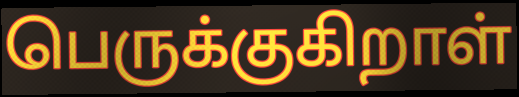
பெருக்குகிறாள்